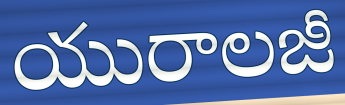
యురాలజీ